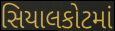
સિયાલકોટમાં